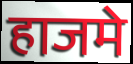
हाजमे